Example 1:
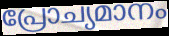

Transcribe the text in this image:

പ്രോച്യമാനം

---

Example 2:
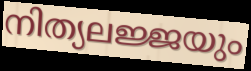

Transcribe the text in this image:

നിത്യലജ്ജയും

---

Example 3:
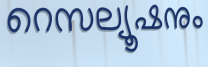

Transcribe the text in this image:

റെസല്യൂഷനും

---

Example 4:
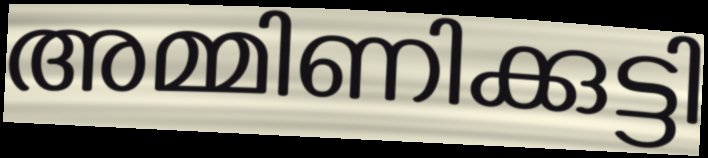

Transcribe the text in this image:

അമ്മിണിക്കുട്ടി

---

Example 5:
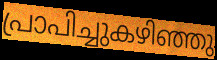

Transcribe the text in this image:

പ്രാപിച്ചുകഴിഞ്ഞു